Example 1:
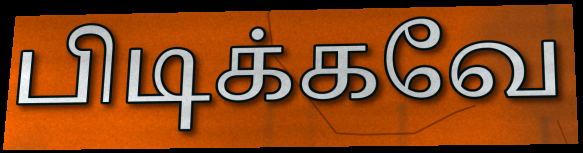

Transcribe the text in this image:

பிடிக்கவே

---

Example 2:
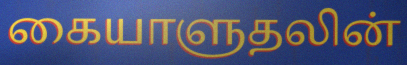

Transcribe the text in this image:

கையாளுதலின்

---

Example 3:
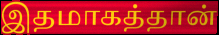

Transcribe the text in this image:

இதமாகத்தான்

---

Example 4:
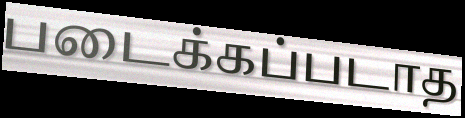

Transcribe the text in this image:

படைக்கப்படாத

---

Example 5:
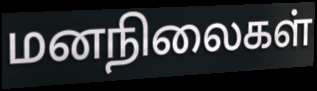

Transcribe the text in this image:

மனநிலைகள்